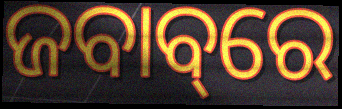
ଜବାବ୍‌ରେ